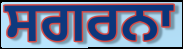
ਸਗਰਨਾ